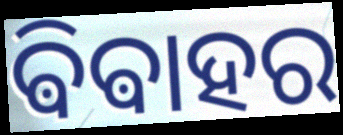
ଵିଵାହର